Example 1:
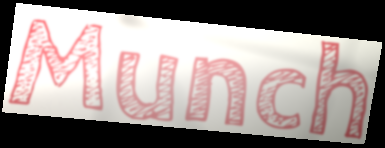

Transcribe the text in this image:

Munch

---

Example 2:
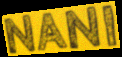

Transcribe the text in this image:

NANI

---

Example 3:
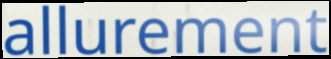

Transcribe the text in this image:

allurement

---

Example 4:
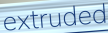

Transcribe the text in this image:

extruded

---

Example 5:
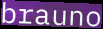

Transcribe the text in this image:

brauno